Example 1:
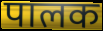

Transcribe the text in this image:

पालक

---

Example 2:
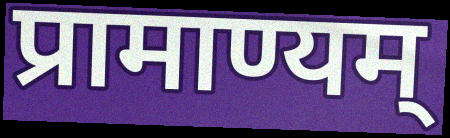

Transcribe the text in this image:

प्रामाण्यम्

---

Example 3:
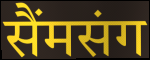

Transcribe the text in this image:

सैंमसंग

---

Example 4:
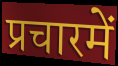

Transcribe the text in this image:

प्रचारमें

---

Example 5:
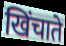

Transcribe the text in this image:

खिंचाते